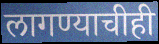
लागण्याचीही